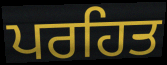
ਪਰਹਿਤ